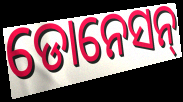
ଡୋନେସନ୍